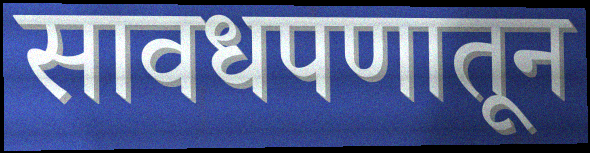
सावधपणातून